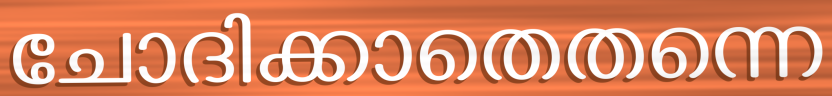
ചോദിക്കാതെതന്നെ